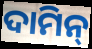
ଦାମିନ୍